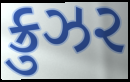
ક્રુઝર